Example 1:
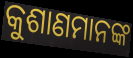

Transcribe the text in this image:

କୁଶାଣମାନଙ୍କ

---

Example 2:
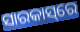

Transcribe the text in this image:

ସାରକାସ୍‌ରେ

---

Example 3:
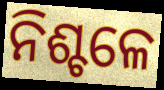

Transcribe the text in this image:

ନିଶ୍ଚଳେ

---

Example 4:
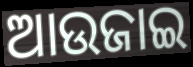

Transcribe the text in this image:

ଆଉଜାଇ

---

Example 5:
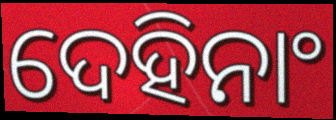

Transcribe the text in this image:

ଦେହିନାଂ